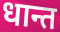
धान्त